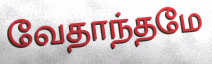
வேதாந்தமே